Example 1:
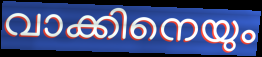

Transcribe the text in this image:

വാക്കിനെയും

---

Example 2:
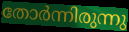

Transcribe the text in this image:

തോർന്നിരുന്നു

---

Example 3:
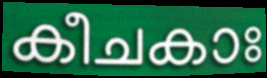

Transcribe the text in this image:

കീചകാഃ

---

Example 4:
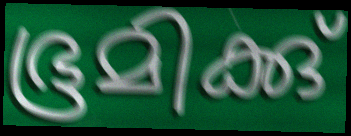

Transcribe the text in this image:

ഭൂമിക്കു്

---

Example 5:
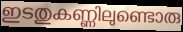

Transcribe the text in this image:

ഇടതുകണ്ണിലുണ്ടൊരു